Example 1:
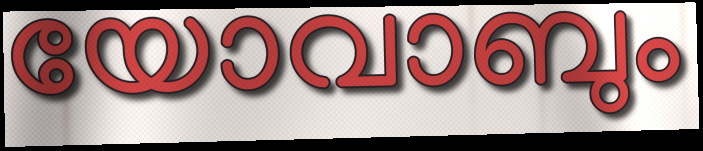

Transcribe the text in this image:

യോവാബും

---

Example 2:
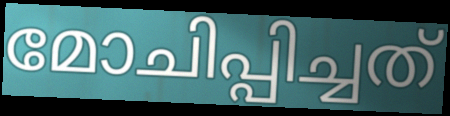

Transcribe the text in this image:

മോചിപ്പിച്ചത്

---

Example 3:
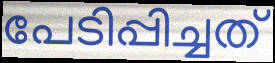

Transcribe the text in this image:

പേടിപ്പിച്ചത്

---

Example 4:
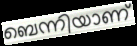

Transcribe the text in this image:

ബെന്നിയാണ്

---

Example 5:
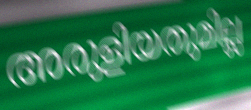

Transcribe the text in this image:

അരുളിയതുമില്ല